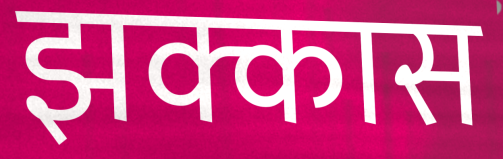
झक्कास